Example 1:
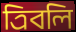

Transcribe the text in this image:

ত্রিবলি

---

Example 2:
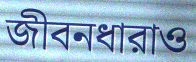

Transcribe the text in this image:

জীবনধারাও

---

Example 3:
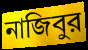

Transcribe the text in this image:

নাজিবুর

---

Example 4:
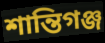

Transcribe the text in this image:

শান্তিগঞ্জ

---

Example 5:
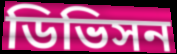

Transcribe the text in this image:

ডিভিসন